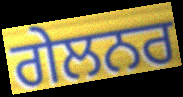
ਗੇਲਨਰ